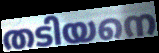
തടിയനെ